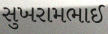
સુખરામભાઈ